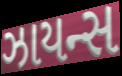
ઝાયન્સ